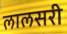
लालसरी